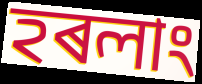
হৰলাং